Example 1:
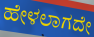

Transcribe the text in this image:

ಹೇಳಲಾಗದೇ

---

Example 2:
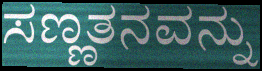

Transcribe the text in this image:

ಸಣ್ಣತನವನ್ನು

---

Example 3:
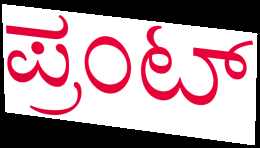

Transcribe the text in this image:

ಪ್ರಂಟ್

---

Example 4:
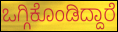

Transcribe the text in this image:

ಒಗ್ಗಿಕೊಂಡಿದ್ದಾರೆ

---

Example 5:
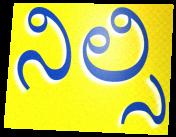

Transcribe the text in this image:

ನಿಲ್ಸಿ